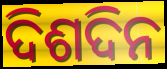
ଦିଶଦିନ